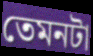
তেমনটা